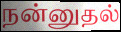
நன்னுதல்